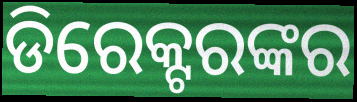
ଡିରେକ୍ଟରଙ୍କର